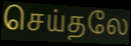
செய்தலே